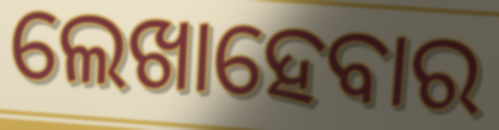
ଲେଖାହେବାର